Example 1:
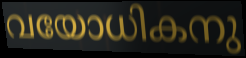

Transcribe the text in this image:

വയോധികനു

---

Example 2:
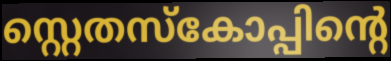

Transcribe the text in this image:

സ്റ്റെതസ്കോപ്പിന്റെ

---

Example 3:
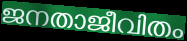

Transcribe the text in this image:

ജനതാജീവിതം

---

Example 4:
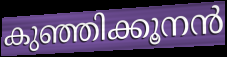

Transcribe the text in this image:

കുഞ്ഞിക്കൂനൻ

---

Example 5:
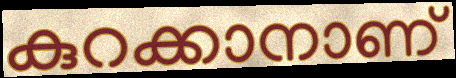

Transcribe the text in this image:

കുറക്കാനാണ്